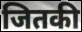
जितकी